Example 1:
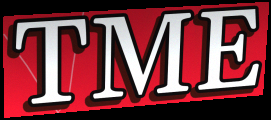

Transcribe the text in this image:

TME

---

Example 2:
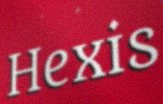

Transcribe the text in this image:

Hexis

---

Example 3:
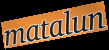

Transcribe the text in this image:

matalun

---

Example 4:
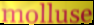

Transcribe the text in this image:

molluse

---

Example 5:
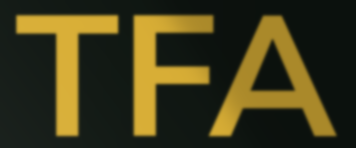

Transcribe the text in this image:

TFA